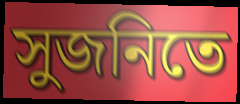
সুজনিতে